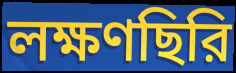
লক্ষণছিরি